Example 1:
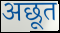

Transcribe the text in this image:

अछूत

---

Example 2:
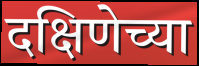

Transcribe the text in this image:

दक्षिणेच्या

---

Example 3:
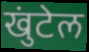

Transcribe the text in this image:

खुंटेल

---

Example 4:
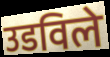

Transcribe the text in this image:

उडविले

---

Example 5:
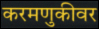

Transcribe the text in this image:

करमणुकीवर